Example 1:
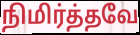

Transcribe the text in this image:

நிமிர்த்தவே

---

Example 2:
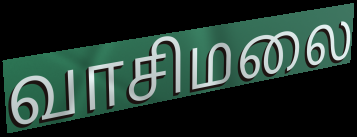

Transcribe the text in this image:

வாசிமலை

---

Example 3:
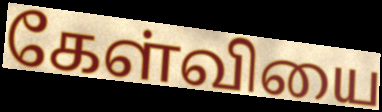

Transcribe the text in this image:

கேள்வியை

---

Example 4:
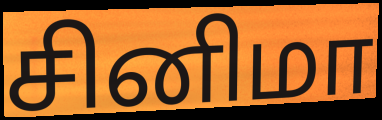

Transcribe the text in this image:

சினிமா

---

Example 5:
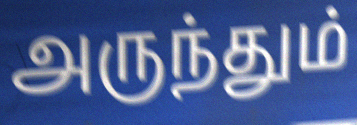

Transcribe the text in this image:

அருந்தும்